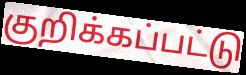
குறிக்கப்பட்டு